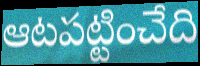
ఆటపట్టించేది